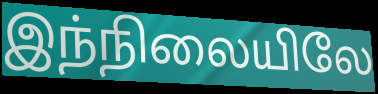
இந்நிலையிலே